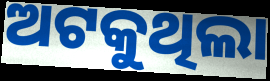
ଅଟକୁଥିଲା